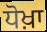
ਧੋਖ਼ਾ